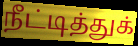
நீட்டித்துக்